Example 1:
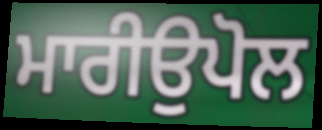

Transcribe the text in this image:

ਮਾਰੀਉਪੋਲ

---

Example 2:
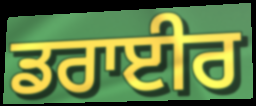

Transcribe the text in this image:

ਡਰਾਈਰ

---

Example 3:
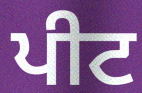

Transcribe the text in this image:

ਪੀਟ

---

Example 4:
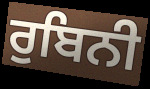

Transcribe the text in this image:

ਰੁਬਿਨੀ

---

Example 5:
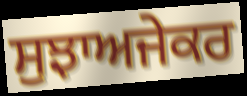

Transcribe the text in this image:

ਸੁਝਾਅਜੇਕਰ